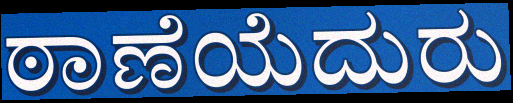
ಠಾಣೆಯೆದುರು